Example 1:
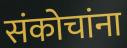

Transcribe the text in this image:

संकोचांना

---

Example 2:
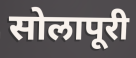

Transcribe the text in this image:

सोलापूरी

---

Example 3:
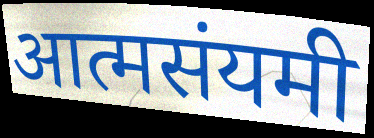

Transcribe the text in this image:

आत्मसंयमी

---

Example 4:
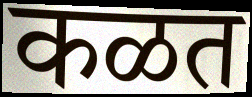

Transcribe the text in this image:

कळत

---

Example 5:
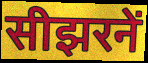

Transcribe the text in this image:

सीझरनें